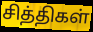
சித்திகள்